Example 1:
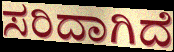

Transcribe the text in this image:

ಸರಿದಾಗಿದೆ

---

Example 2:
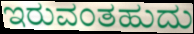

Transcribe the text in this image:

ಇರುವಂತಹುದು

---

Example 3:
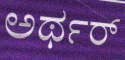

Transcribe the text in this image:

ಅರ್ಥರ್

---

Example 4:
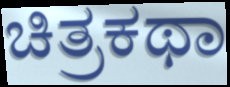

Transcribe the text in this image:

ಚಿತ್ರಕಥಾ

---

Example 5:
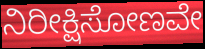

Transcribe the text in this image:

ನಿರೀಕ್ಷಿಸೋಣವೇ